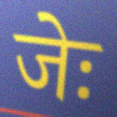
जेः